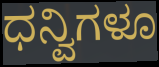
ಧನ್ವಿಗಳೂ